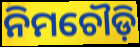
ନିମଚୌଡ଼ି